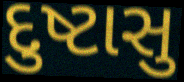
દુષ્ટાસુ